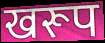
खरूप